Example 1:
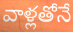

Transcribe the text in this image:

వాళ్లతోనే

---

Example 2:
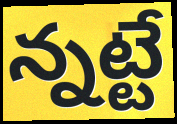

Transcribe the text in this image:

న్నట్టే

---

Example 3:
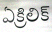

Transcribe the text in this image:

ఏక్రిలిక్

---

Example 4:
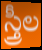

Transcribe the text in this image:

స్త్రీల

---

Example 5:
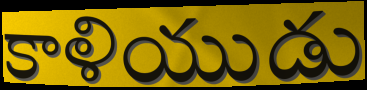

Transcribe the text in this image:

కాళియుడు